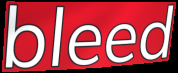
bleed